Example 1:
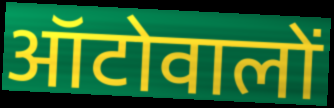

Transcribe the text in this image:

ऑटोवालों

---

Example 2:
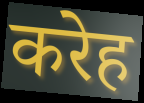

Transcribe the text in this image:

करेह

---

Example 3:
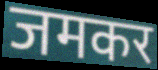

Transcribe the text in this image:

जमकर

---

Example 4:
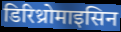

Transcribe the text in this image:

डिरिथ्रोमाइसिन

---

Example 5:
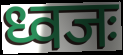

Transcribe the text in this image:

ध्वजः